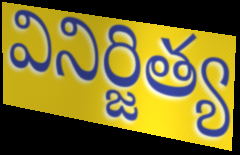
వినిర్జిత్య